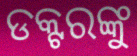
ଡକ୍ଟରଙ୍କୁ